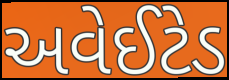
અવેઈટેડ